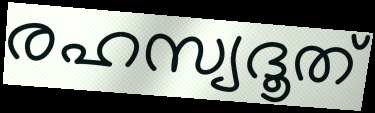
രഹസ്യദൂത്